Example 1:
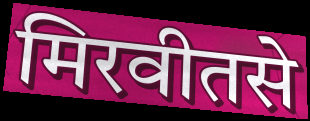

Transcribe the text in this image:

मिरवीतसे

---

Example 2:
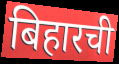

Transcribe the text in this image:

बिहारची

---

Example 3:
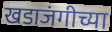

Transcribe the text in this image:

खडाजंगीच्या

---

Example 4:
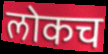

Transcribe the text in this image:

लोकच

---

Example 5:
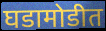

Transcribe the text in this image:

घडामोडीत